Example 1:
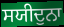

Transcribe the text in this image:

ਸਯੀਦੁਨਾ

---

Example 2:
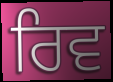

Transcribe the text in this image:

ਰਿਵ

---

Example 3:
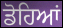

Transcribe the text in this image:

ਡੋਹਿਆਂ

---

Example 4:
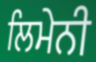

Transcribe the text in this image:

ਲਿਮੇਨੀ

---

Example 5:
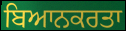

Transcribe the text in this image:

ਬਿਆਨਕਰਤਾ